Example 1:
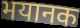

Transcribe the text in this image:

भयानक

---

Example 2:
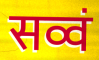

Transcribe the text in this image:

सव्वं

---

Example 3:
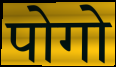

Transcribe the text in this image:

पोगो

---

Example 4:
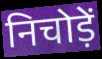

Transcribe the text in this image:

निचोड़ें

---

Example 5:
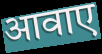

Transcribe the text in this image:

आवाए